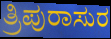
ತ್ರಿಪುರಾಸುರ